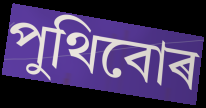
পুথিবোৰ